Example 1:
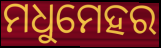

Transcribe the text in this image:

ମଧୁମେହର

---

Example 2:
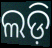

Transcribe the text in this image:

ଲଡ଼ି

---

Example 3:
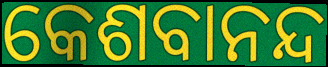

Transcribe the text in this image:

କେଶବାନନ୍ଦ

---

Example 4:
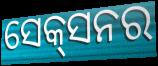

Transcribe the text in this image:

ସେକ୍‍ସନର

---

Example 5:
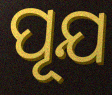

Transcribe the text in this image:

ପୂଯ